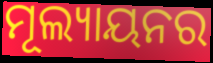
ମୂଲ୍ୟାୟନର